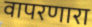
वापरणारा